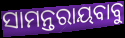
ସାମନ୍ତରାୟବାବୁ